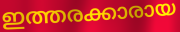
ഇത്തരക്കാരായ